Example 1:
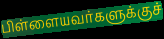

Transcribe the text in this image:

பிள்ளையவர்களுக்குச்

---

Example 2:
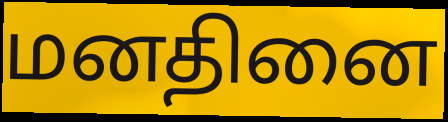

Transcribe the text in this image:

மனதினை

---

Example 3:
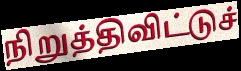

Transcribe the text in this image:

நிறுத்திவிட்டுச்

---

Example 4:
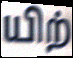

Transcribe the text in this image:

யிற்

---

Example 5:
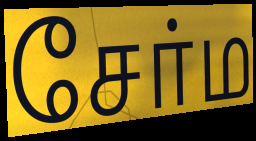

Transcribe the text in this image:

சேர்ம